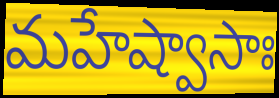
మహేష్వాసాః